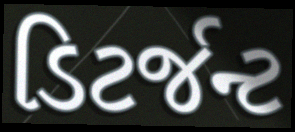
ડિટર્જન્ટ